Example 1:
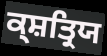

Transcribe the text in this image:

ਕ੍ਸ਼ਤ੍ਰਿਯ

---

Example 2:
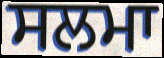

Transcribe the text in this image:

ਸਲਮਾ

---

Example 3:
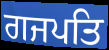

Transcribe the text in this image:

ਗਜਪਤਿ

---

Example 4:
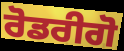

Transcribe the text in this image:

ਰੋਡਰੀਗੋ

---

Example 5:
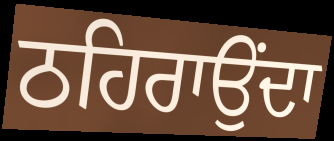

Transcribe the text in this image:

ਠਹਿਰਾਉਂਦਾ